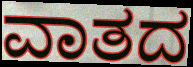
ವಾತದ